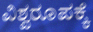
ವಿಶ್ವರೂಪಕ್ಕೆ